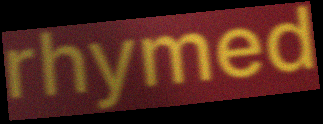
rhymed